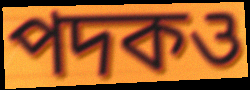
পদকও